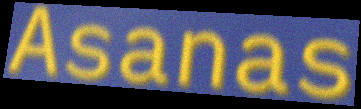
Asanas